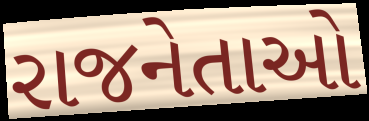
રાજનેતાઓ